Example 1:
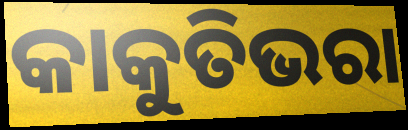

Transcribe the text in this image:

କାକୁତିଭରା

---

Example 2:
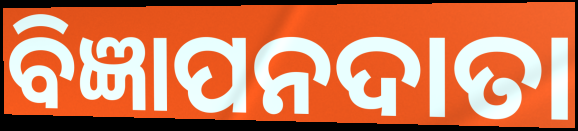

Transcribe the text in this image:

ବିଜ୍ଞାପନଦାତା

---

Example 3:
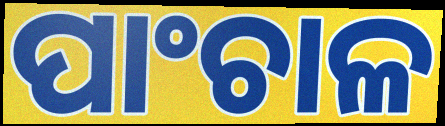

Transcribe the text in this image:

ପାଂଚାଳ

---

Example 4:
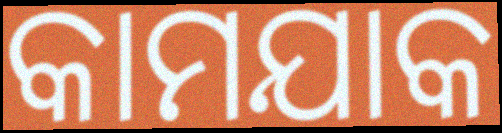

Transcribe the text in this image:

କାମଯାକ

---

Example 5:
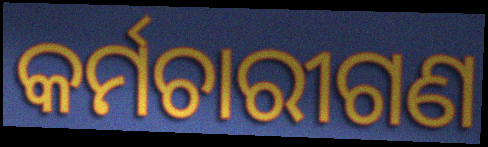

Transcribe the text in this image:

କର୍ମଚାରୀଗଣ